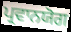
ਪ੍ਰਵਾਨਯੋਗ